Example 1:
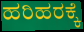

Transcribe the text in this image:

ಹರಿಹರಕ್ಕೆ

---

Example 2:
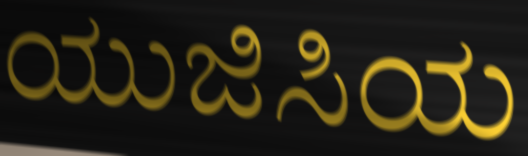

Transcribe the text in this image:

ಯುಜಿಸಿಯ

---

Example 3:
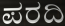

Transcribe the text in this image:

ಪರದಿ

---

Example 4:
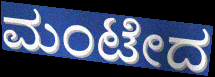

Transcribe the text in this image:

ಮಂಟೇದ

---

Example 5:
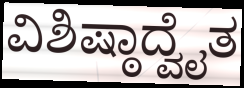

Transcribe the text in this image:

ವಿಶಿಷ್ಠಾದ್ವೈತ